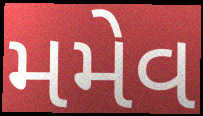
મમેવ